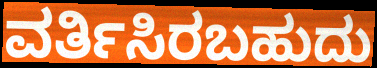
ವರ್ತಿಸಿರಬಹುದು